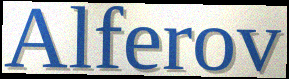
Alferov